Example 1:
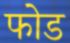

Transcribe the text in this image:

फोड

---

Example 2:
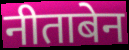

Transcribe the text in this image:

नीताबेन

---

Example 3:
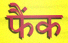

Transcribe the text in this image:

फैंक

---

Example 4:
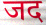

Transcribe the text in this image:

जद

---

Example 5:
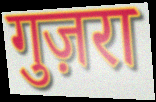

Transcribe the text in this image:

गुज़रा